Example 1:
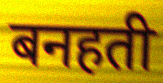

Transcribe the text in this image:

बनहती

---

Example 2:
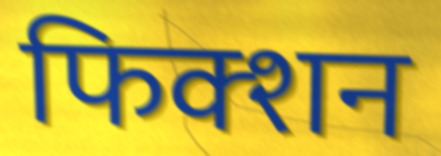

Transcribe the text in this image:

फिक्‍शन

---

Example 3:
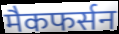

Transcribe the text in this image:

मैकफर्सन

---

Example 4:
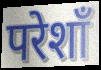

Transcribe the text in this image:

परेशाँ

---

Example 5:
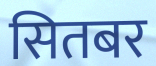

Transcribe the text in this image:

सितबर